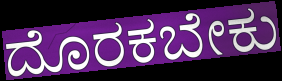
ದೊರಕಬೇಕು